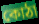
কোঠা